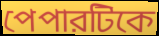
পেপারটিকে